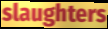
slaughters